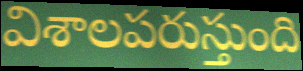
విశాలపరుస్తుంది